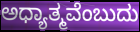
ಅಧ್ಯಾತ್ಮವೆಂಬುದು